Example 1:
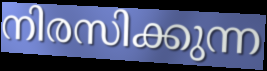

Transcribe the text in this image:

നിരസിക്കുന്ന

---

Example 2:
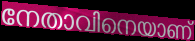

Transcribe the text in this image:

നേതാവിനെയാണ്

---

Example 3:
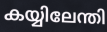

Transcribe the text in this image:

കയ്യിലേന്തി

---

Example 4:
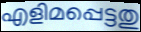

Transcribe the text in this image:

എളിമപ്പെട്ടതു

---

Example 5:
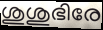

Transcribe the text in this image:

ശുശുഭിരേ